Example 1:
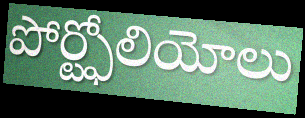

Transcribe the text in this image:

పోర్ట్ఫోలియోలు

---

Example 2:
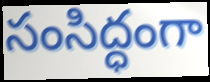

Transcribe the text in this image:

సంసిద్ధంగా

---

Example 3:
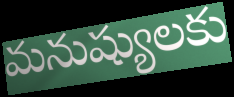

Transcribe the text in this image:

మనుష్యులకు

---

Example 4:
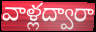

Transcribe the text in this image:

వాళ్లద్వారా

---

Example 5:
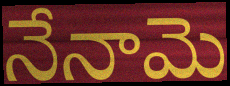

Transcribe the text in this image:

నేనామె